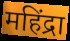
महिंद्रा